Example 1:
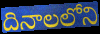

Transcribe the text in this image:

దినాలలోని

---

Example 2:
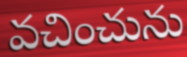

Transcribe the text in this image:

వచించును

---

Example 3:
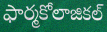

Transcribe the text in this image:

ఫార్మకోలాజికల్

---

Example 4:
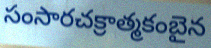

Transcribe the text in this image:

సంసారచక్రాత్మకంబైన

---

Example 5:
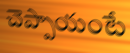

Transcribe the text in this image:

చెప్పాయంటే